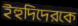
ইহুদিদেরকে